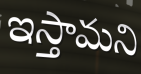
ఇస్తామని